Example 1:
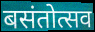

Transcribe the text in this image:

बसंतोत्सव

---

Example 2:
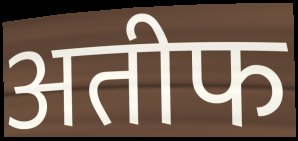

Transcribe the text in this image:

अतीफ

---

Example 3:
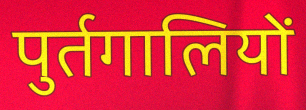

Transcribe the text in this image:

पुर्तगालियों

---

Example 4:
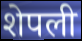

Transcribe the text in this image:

शेपली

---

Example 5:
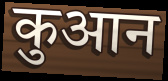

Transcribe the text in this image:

कुआन